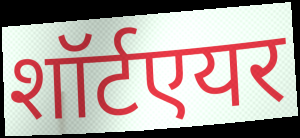
शॉर्टएयर